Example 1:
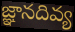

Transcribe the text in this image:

జ్ఞానదివ్య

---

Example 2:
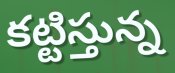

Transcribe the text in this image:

కట్టిస్తున్న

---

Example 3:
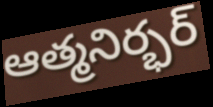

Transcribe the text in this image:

ఆత్మనిర్భర్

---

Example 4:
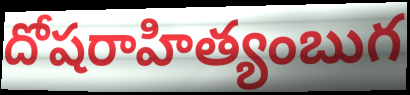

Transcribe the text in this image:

దోషరాహిత్యంబుగ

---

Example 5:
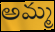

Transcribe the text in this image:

అమ్మ